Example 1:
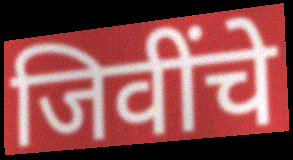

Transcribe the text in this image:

जिवींचे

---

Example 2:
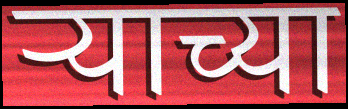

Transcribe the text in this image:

ऱ्याच्या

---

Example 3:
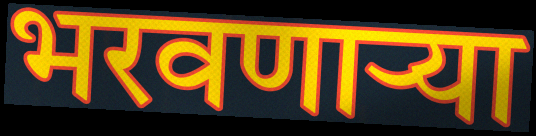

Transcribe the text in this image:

भरवणाऱ्या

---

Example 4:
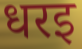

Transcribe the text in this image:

धरइ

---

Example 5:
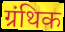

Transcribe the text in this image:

ग्रंथिक